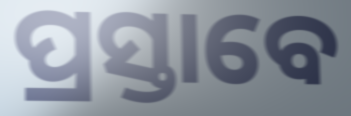
ପ୍ରସ୍ତାବେ